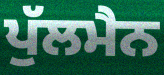
ਪੁੱਲਮੈਨ